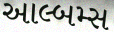
આલ્બમ્સ